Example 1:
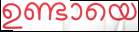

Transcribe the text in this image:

ഉണ്ടായെ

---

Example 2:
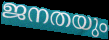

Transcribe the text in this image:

ജനതയും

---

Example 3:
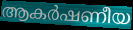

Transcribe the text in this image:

ആകർഷണീയ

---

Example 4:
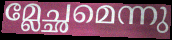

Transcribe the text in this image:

മ്ലേച്ഛമെന്നു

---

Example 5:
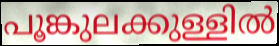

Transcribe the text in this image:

പൂങ്കുലക്കുള്ളിൽ